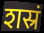
शस्रं